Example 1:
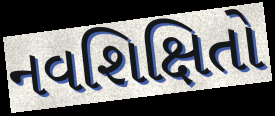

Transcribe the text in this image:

નવશિક્ષિતો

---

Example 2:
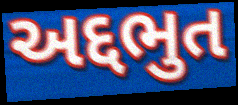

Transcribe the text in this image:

અદ્દભુત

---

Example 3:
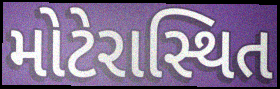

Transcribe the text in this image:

મોટેરાસ્થિત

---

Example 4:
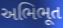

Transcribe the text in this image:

અભિભૂત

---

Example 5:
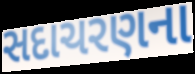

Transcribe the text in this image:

સદાચરણના